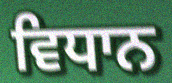
ਵਿਧਾਨ